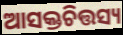
ଆସକ୍ତଚିତ୍ତସ୍ୟ